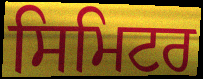
ਸਿਮਿਟਰ